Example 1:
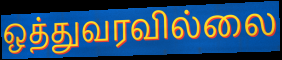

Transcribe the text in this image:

ஒத்துவரவில்லை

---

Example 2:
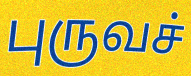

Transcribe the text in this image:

புருவச்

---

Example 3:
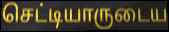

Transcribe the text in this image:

செட்டியாருடைய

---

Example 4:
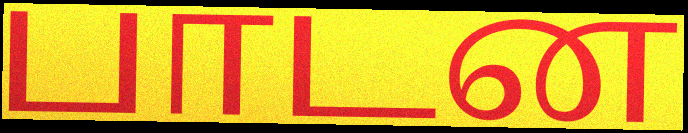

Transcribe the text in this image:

பாடன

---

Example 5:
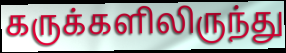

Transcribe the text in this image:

கருக்களிலிருந்து